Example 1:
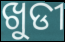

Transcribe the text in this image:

ଖୁଡୀ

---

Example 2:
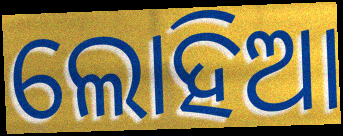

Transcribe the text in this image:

ଲୋହିଆ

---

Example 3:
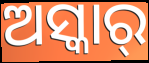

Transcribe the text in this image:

ଅସ୍କାର୍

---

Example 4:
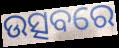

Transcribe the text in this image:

ଉତ୍ସବରେ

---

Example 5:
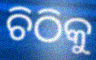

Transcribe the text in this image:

ଚିଠିକୁ